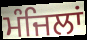
ਮੰਜਿਲਾਂ